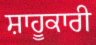
ਸ਼ਾਹੂਕਾਰੀ